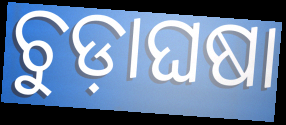
ଚୁଡ଼ାଘଷା